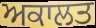
ਅਕਾਲਤ